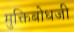
मुक्तिबोधजी